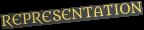
REPRESENTATION